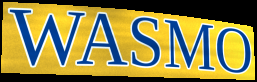
WASMO